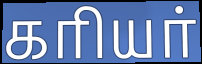
கரியர்